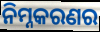
ନିମ୍ନକରଣର